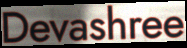
Devashree